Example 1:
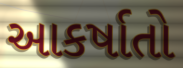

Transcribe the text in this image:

આકર્ષાતો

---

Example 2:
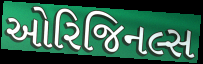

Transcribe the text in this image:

ઓરિજિનલ્સ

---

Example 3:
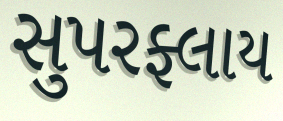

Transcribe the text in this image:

સુપરફ્લાય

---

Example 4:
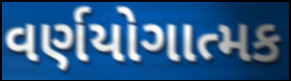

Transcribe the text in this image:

વર્ણયોગાત્મક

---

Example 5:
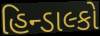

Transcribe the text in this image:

હિન્ડાલ્કો